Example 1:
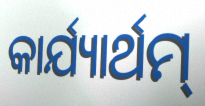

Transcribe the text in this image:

କାର୍ଯ୍ୟାର୍ଥମ୍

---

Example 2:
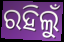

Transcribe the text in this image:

ରହିଲୁଁ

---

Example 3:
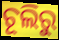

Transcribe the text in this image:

ଚୂଲିରୁ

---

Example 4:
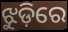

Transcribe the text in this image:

ଝୁଡ଼ିରେ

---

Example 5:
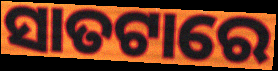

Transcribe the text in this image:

ସାତଟାରେ